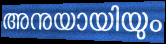
അനുയായിയും